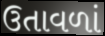
ઉતાવળાં